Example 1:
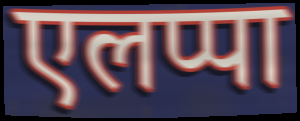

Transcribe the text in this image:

एलप्पा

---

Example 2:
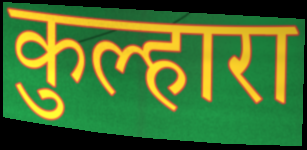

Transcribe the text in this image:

कुल्हारा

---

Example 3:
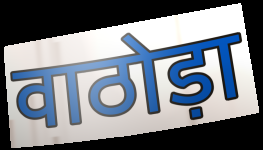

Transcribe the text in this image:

वाठोड़ा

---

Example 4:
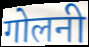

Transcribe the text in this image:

गोलनी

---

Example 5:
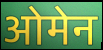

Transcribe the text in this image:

ओमेन